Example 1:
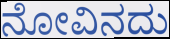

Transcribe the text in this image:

ನೋವಿನದು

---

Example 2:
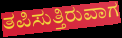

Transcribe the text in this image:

ತಪಿಸುತ್ತಿರುವಾಗ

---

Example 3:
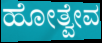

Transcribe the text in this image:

ಹೋತ್ವೇವ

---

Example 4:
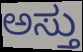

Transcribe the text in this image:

ಅಸ್ತು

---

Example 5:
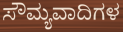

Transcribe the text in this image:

ಸೌಮ್ಯವಾದಿಗಳ